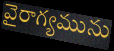
వైరాగ్యమును